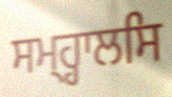
ਸਮ੍ਹ੍ਹਾਲਸਿ